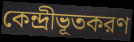
কেন্দ্রীভূতকরণ